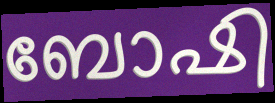
ബോഷി